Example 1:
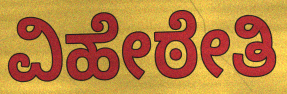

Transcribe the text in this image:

ವಿಹೇಠೇತಿ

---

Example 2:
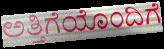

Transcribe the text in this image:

ಅತ್ತಿಗೆಯೊಂದಿಗೆ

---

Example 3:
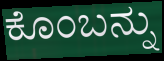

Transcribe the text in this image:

ಕೊಂಬನ್ನು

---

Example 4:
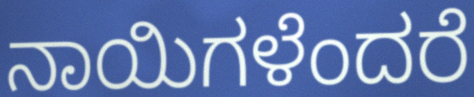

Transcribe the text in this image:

ನಾಯಿಗಳೆಂದರೆ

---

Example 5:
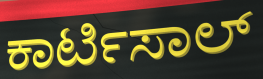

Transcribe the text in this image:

ಕಾರ್ಟಿಸಾಲ್